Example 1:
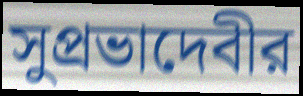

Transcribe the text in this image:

সুপ্রভাদেবীর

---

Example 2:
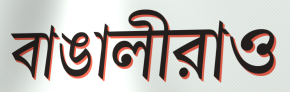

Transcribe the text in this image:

বাঙালীরাও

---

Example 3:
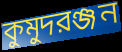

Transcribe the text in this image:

কুমুদরঞ্জন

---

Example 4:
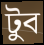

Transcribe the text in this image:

টুব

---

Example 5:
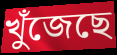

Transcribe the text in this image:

খুঁজেছে